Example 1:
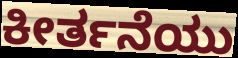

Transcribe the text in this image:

ಕೀರ್ತನೆಯು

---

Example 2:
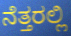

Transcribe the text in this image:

ನೆತ್ತರಲ್ಲಿ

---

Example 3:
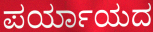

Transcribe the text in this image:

ಪರ್ಯಾಯದ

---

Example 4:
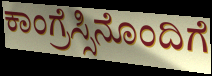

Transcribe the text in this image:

ಕಾಂಗ್ರೆಸ್ಸಿನೊಂದಿಗೆ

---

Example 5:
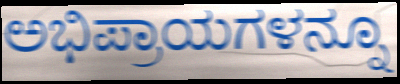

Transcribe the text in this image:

ಅಭಿಪ್ರಾಯಗಳನ್ನೂ